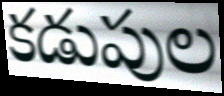
కడుపుల